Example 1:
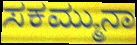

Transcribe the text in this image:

ಸಕಮ್ಮುನಾ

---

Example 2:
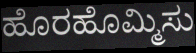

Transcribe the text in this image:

ಹೊರಹೊಮ್ಮಿಸು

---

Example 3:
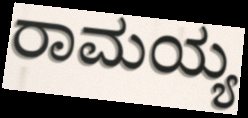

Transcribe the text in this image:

ರಾಮಯ್ಯ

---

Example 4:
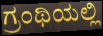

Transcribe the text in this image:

ಗ್ರಂಥಿಯಲ್ಲಿ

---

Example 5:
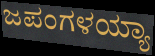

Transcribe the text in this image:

ಜಪಂಗಳಯ್ಯಾ